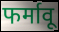
फर्मावू